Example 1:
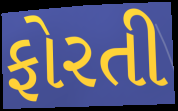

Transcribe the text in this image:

ફોરતી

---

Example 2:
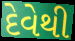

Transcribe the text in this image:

દેવેથી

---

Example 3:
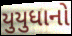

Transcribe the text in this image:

યુયુધાનો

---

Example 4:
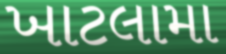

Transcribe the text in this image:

ખાટલામા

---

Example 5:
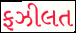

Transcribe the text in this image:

ફઝીલત